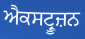
ਐਕਸਟ੍ਰੂਜ਼ਨ